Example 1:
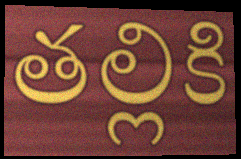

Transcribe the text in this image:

తల్లికి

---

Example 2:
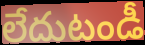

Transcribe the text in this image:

లేదుటండీ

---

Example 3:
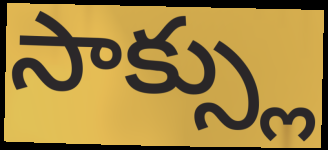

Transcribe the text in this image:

సాక్స్లు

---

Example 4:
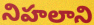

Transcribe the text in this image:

నిహలాని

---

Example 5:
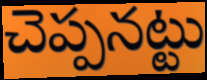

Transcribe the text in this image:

చెప్పనట్టు